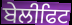
ਬੇਲੀਫਿਟ